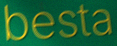
besta